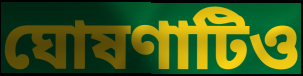
ঘোষণাটিও